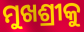
ମୁଖଶ୍ରୀକୁ